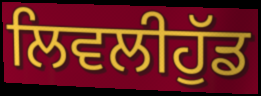
ਲਿਵਲੀਹੁੱਡ